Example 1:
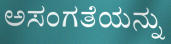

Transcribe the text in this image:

ಅಸಂಗತೆಯನ್ನು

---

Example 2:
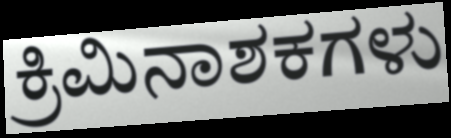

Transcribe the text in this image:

ಕ್ರಿಮಿನಾಶಕಗಳು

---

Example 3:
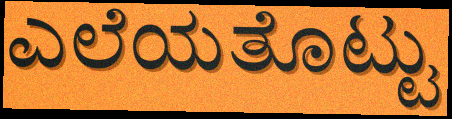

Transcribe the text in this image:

ಎಲೆಯತೊಟ್ಟು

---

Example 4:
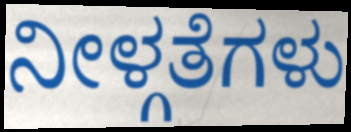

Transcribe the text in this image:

ನೀಳ್ಗತೆಗಳು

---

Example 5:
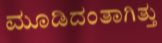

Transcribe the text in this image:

ಮೂಡಿದಂತಾಗಿತ್ತು